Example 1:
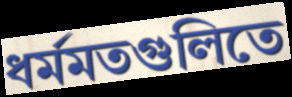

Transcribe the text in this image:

ধর্মমতগুলিতে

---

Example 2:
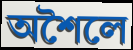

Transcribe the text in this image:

অশৈলে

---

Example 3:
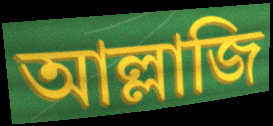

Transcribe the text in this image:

আল্লাজি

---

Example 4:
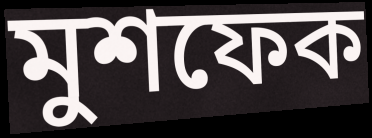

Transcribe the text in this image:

মুশফেক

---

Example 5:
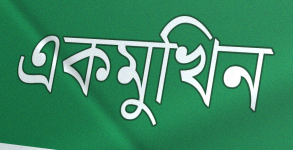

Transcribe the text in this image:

একমুখিন